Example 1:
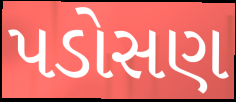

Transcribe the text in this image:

પડોસણ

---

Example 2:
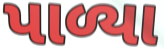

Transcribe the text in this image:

પાળ્યા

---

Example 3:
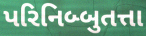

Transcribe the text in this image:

પરિનિબ્બુતત્તા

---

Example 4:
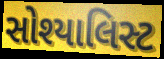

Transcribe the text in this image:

સોશ્યાલિસ્ટ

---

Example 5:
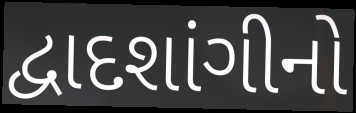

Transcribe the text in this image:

દ્વાદશાંગીનો